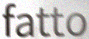
fatto